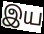
இய